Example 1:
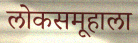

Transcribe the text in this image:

लोकसमूहाला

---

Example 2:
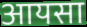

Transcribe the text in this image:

आयसा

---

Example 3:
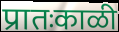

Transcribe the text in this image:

प्रातःकाळी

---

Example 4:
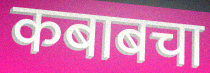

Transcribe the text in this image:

कबाबचा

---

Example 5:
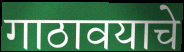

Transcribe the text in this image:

गाठावयाचे